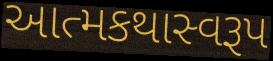
આત્મકથાસ્વરૂપ